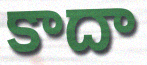
కాదా